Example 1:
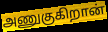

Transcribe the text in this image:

அணுகுகிறான்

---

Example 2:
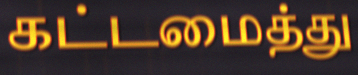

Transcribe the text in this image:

கட்டமைத்து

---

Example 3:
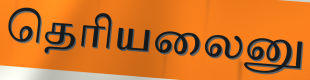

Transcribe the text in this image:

தெரியலைனு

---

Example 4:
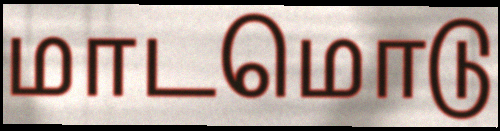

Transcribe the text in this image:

மாடமொடு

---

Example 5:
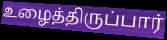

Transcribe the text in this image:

உழைத்திருப்பார்